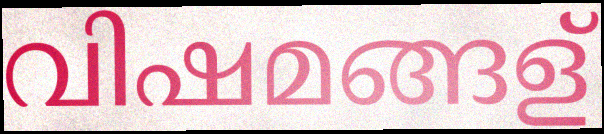
വിഷമങ്ങള്